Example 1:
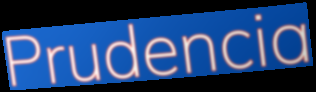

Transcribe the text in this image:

Prudencia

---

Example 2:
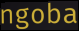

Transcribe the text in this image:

ngoba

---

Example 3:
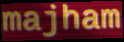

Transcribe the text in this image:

majham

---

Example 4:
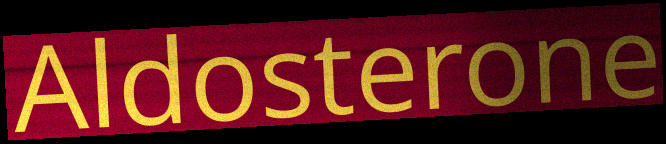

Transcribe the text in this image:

Aldosterone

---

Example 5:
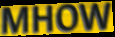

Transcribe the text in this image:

MHOW